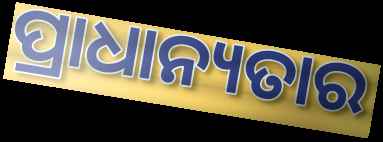
ପ୍ରାଧାନ୍ୟତାର